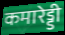
कमारेड्डी